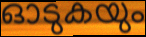
ഓടുകയും